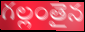
గల్లంతైన